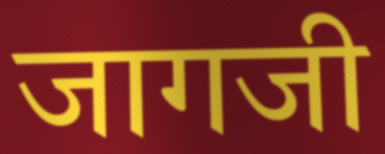
जागजी